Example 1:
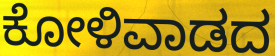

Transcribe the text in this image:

ಕೋಳಿವಾಡದ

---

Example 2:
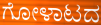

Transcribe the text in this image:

ಗೋಳಾಟದ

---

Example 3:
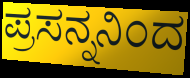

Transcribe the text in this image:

ಪ್ರಸನ್ನನಿಂದ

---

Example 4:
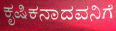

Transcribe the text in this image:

ಕೃಷಿಕನಾದವನಿಗೆ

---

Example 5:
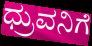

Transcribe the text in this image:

ಧ್ರುವನಿಗೆ